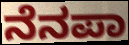
ನೆನಪಾ